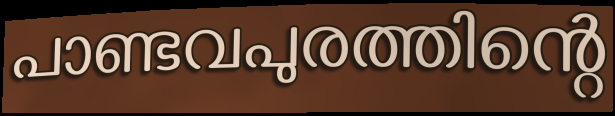
പാണ്ടവപുരത്തിന്റെ